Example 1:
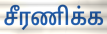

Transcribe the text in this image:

சீரணிக்க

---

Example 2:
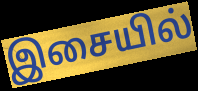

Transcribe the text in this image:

இசையில்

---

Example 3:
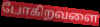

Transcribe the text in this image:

போகிறவளை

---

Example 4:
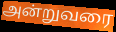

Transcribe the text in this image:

அன்றுவரை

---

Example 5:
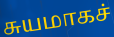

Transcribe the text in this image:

சுயமாகச்